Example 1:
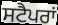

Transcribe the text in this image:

ਸਟੈਪਰਾਂ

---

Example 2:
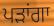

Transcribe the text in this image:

ਪੜਾਂਗਾ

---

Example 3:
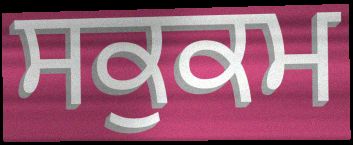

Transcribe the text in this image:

ਸਕੁਕਮ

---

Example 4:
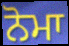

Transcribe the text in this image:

ਨੋਮਾ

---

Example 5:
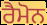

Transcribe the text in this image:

ਰੈਮੋਨ